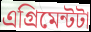
এগ্রিমেন্টটা